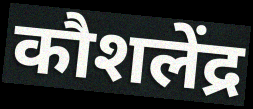
कौशलेंद्र